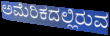
ಅಮೆರಿಕದಲ್ಲಿರುವ